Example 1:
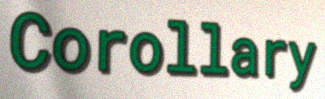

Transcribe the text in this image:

Corollary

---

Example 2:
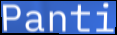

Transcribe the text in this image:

Panti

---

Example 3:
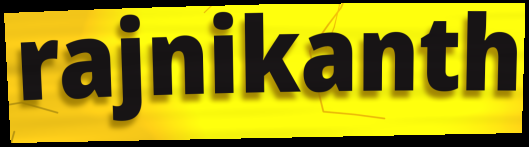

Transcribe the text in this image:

rajnikanth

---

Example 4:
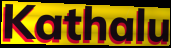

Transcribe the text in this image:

Kathalu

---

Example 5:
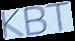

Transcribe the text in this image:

KBT